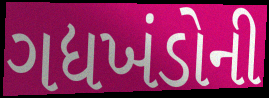
ગદ્યખંડોની